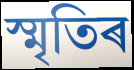
স্মৃতিৰ